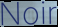
Noir